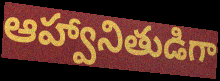
ఆహ్వానితుడిగా